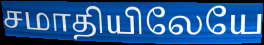
சமாதியிலேயே